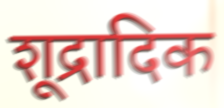
शूद्रादिक